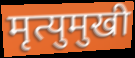
मृत्युमुखी